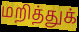
மறித்துக்